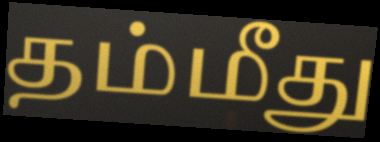
தம்மீது